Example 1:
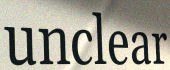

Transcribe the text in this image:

unclear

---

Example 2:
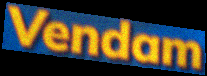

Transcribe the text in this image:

Vendam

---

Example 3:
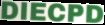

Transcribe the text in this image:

DIECPD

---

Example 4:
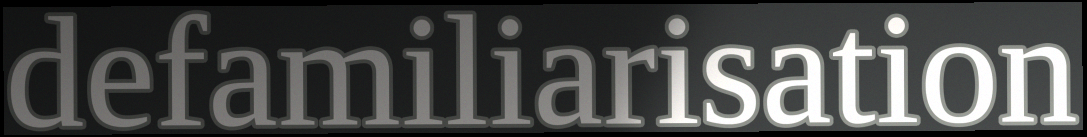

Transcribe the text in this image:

defamiliarisation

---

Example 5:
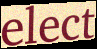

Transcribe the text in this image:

elect